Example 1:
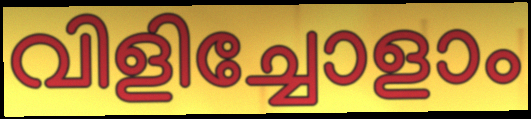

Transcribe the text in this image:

വിളിച്ചോളാം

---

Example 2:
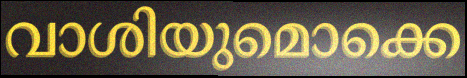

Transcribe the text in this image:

വാശിയുമൊക്കെ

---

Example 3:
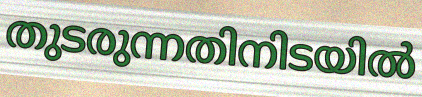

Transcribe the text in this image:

തുടരുന്നതിനിടയിൽ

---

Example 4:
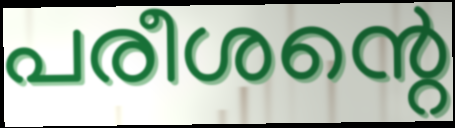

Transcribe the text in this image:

പരീശന്റെ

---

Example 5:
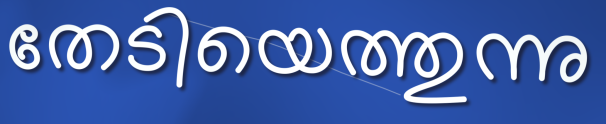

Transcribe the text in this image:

തേടിയെത്തുന്നു